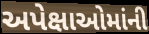
અપેક્ષાઓમાંની